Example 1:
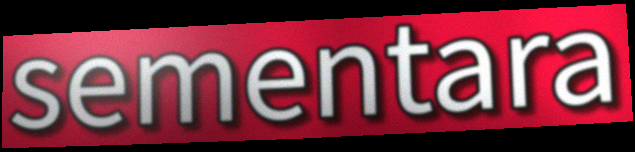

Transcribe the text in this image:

sementara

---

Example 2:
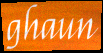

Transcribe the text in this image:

ghaun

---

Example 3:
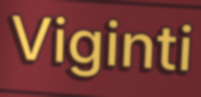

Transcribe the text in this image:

Viginti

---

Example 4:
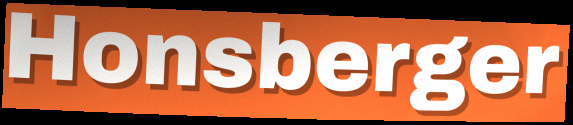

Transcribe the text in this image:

Honsberger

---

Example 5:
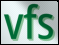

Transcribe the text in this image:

vfs